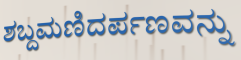
ಶಬ್ದಮಣಿದರ್ಪಣವನ್ನು